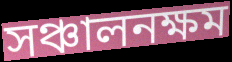
সঞ্চালনক্ষম